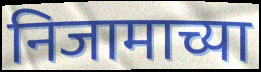
निजामाच्या